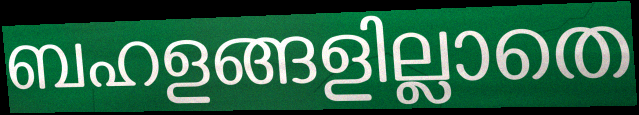
ബഹളങ്ങളില്ലാതെ